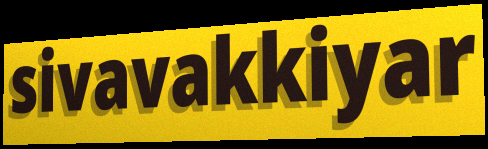
sivavakkiyar